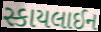
સ્કાયલાઈન